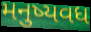
મનુષ્યવધ